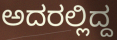
ಅದರಲ್ಲಿದ್ದ